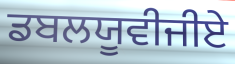
ਡਬਲਯੂਵੀਜੀਏ